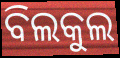
ବିଲକୁଲ